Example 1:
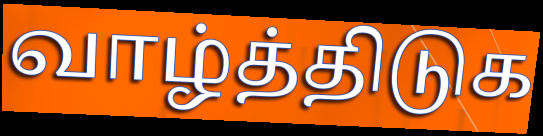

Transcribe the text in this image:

வாழ்த்திடுக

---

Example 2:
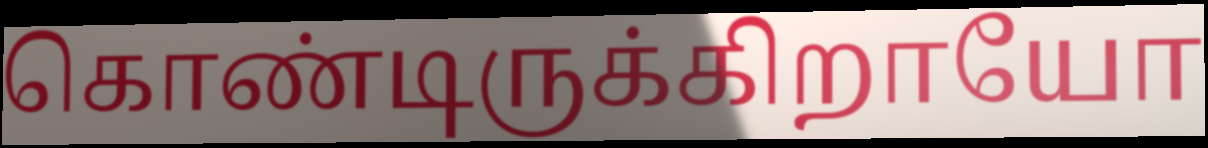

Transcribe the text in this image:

கொண்டிருக்கிறாயோ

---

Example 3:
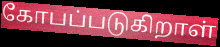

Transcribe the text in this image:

கோபப்படுகிறாள்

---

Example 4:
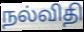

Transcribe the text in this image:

நல்விதி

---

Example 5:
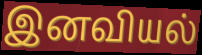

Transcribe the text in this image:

இனவியல்